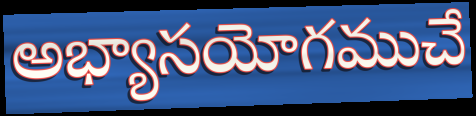
అభ్యాసయోగముచే